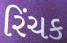
રિંચક